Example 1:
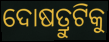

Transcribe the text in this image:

ଦୋଷତ୍ରୁଟିକୁ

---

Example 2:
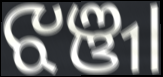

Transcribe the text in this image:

ଝଞ୍ଜା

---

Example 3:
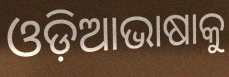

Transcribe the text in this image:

ଓଡ଼ିଆଭାଷାକୁ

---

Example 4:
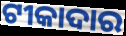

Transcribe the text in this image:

ଟୀକାଦାର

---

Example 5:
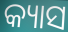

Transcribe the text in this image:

କ୍ୟାସ